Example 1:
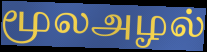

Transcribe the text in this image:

மூலஅழல்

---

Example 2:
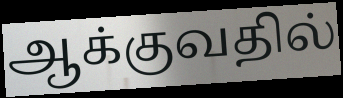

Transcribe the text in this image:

ஆக்குவதில்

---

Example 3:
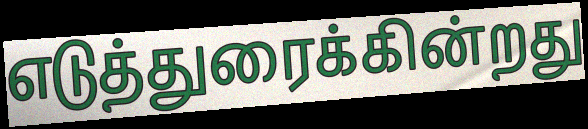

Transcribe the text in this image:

எடுத்துரைக்கின்றது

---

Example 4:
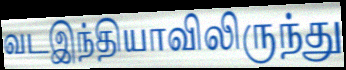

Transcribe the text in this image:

வடஇந்தியாவிலிருந்து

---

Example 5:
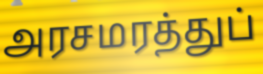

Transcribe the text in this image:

அரசமரத்துப்